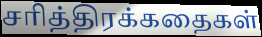
சரித்திரக்கதைகள்